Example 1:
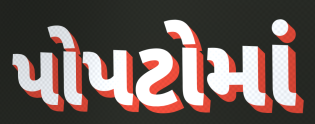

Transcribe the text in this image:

પોપટોમાં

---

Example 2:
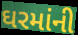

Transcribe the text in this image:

ઘરમાંની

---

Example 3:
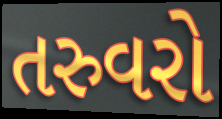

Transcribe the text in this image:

તરુવરો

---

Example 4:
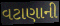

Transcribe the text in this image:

વટાણાની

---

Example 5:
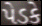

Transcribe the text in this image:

પેડકે